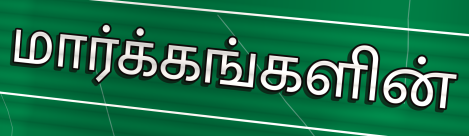
மார்க்கங்களின்